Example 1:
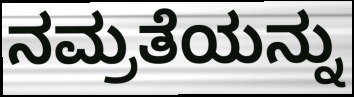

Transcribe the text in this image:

ನಮ್ರತೆಯನ್ನು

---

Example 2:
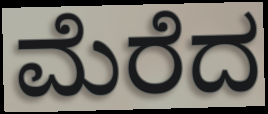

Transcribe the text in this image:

ಮೆರೆದ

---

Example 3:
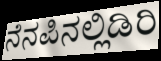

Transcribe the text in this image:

ನೆನಪಿನಲ್ಲಿಡಿರಿ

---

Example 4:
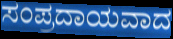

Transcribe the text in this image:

ಸಂಪ್ರದಾಯವಾದ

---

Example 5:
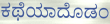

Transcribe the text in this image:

ಕಥೆಯಾದೊಡಂ